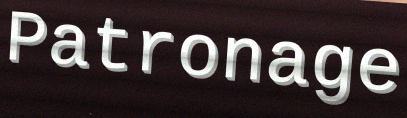
Patronage